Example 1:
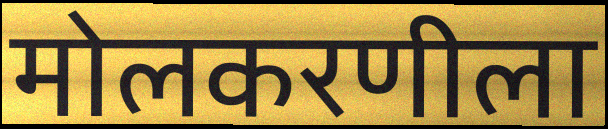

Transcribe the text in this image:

मोलकरणीला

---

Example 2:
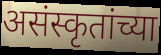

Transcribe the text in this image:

असंस्कृतांच्या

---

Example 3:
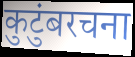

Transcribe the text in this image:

कुटुंबरचना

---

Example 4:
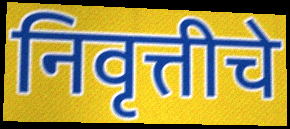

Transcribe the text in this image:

निवृत्तीचे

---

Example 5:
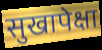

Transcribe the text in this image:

सुखापेक्षा